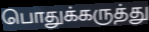
பொதுக்கருத்து